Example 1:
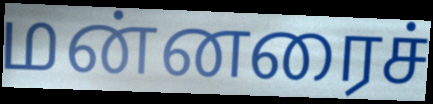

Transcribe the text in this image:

மன்னரைச்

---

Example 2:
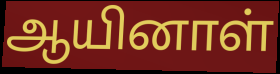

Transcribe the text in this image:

ஆயினாள்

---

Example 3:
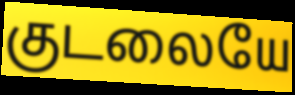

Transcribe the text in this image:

குடலையே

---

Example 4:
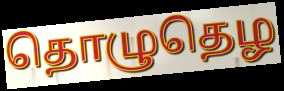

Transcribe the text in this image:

தொழுதெழ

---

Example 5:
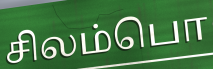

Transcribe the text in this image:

சிலம்பொ